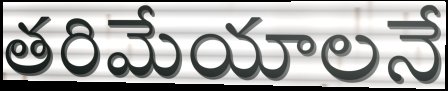
తరిమేయాలనే